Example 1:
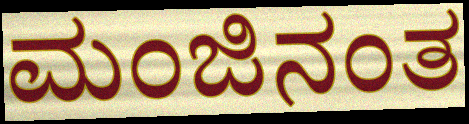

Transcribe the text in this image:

ಮಂಜಿನಂತ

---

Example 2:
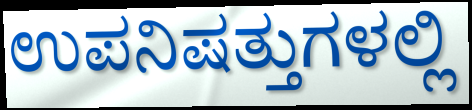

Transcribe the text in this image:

ಉಪನಿಷತ್ತುಗಳಲ್ಲಿ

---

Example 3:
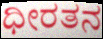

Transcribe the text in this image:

ಧೀರತನ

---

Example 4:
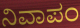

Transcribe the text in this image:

ನಿವಾಪಂ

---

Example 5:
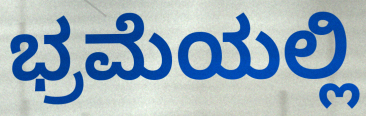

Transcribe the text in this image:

ಭ್ರಮೆಯಲ್ಲಿ